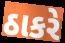
ઠાકરે